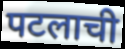
पटलाची